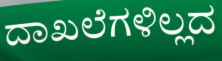
ದಾಖಲೆಗಳಿಲ್ಲದ